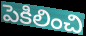
పెకిలించి